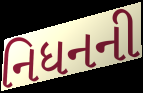
નિધનની